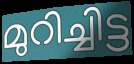
മുറിച്ചിട്ട